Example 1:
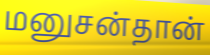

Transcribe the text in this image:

மனுசன்தான்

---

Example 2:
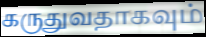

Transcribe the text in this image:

கருதுவதாகவும்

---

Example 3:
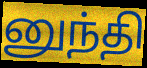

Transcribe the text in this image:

னுந்தி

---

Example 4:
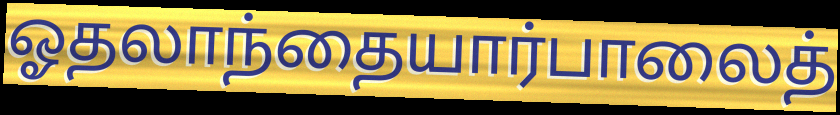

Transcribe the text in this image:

ஓதலாந்தையார்பாலைத்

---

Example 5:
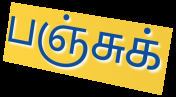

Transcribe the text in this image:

பஞ்சுக்